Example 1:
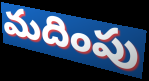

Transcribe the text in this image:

మదింపు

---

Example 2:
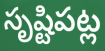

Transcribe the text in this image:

సృష్టిపట్ల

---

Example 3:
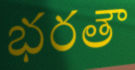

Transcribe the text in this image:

భరతౌ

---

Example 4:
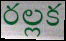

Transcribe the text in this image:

రల్లక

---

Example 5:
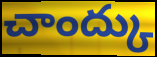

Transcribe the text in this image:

చాంద్కు